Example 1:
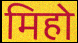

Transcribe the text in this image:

मिहो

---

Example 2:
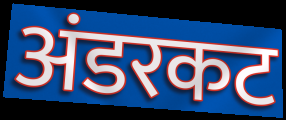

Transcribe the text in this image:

अंडरकट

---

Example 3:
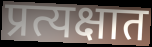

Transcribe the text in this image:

प्रत्यक्षात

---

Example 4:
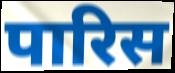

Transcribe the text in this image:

पारिस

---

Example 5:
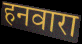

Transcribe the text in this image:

हनवारा